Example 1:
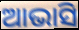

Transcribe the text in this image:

ଆଭାସି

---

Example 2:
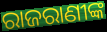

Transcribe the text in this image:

ରାଜରାଣୀଙ୍କ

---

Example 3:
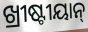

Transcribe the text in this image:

ଖ୍ରୀଷ୍ଟୀୟାନ୍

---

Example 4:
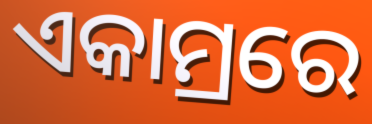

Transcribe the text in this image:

ଏକାମ୍ରରେ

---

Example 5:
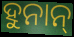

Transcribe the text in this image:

ହୁନାନ୍